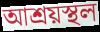
আশ্রয়স্থল